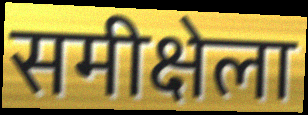
समीक्षेला